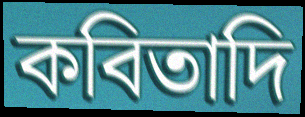
কবিতাদি